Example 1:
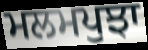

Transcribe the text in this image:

ਮਲਮਪੁਝਾ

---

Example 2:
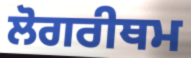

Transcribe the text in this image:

ਲੋਗਰੀਥਮ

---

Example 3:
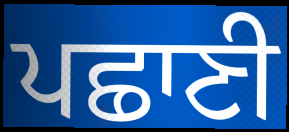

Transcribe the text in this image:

ਪਛਾਣੀ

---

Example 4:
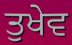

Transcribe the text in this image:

ਤੁਖੇਵ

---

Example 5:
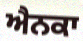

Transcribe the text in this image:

ਐਨਕਾ